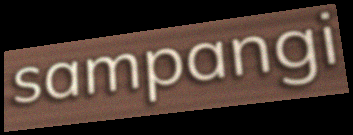
sampangi